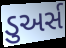
ડુઅર્સ